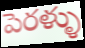
పెరళ్ళు